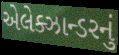
એલેક્ઝાન્ડરનું